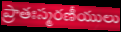
ప్రాతఃస్మరణీయులు